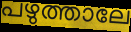
പഴുത്താലേ